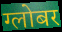
ग्लोबर